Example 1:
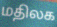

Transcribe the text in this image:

மதிலக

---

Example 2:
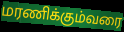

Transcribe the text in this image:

மரணிக்கும்வரை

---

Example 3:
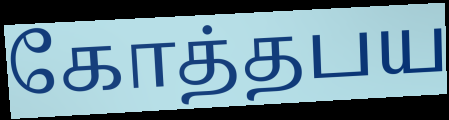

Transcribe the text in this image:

கோத்தபய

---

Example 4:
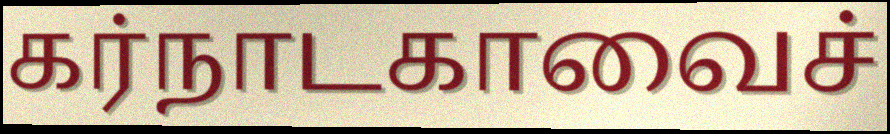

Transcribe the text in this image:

கர்நாடகாவைச்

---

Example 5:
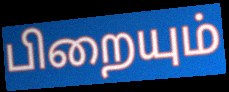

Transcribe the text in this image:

பிறையும்